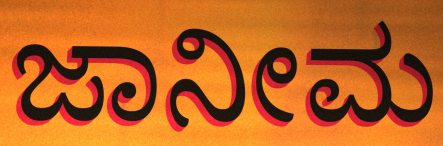
ಜಾನೀಮ